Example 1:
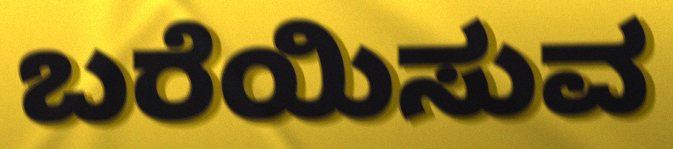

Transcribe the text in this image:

ಬರೆಯಿಸುವ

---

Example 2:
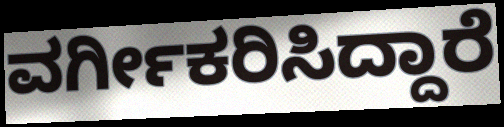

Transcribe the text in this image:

ವರ್ಗೀಕರಿಸಿದ್ದಾರೆ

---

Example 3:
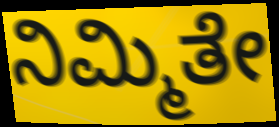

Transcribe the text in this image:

ನಿಮ್ಮಿತೇ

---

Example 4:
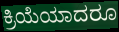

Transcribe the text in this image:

ಕ್ರಿಯೆಯಾದರೂ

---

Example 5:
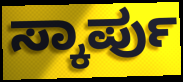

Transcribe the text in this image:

ಸ್ಕಾರ್ಪು